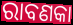
ରାବଣକା